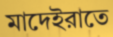
মাদেইরাতে